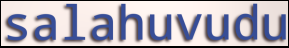
salahuvudu